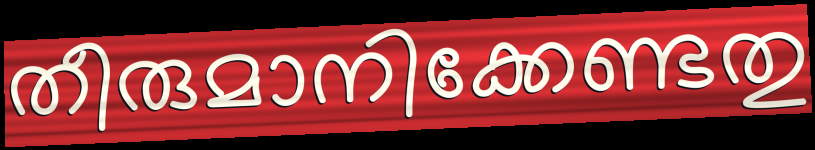
തീരുമാനിക്കേണ്ടതു